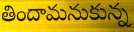
తిందామనుకున్న